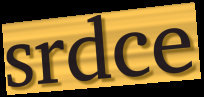
srdce